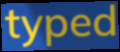
typed